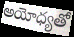
అయోధ్యతో